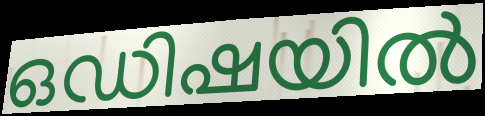
ഒഡിഷയിൽ